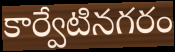
కార్వేటినగరం